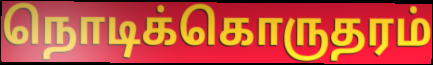
நொடிக்கொருதரம்